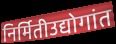
निर्मितीउद्योगांत